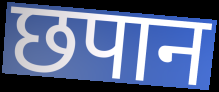
छपान